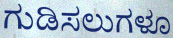
ಗುಡಿಸಲುಗಳೂ